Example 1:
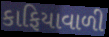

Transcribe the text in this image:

કાફિયાવાળી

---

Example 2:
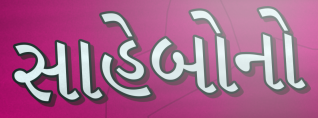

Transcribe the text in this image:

સાહેબોનો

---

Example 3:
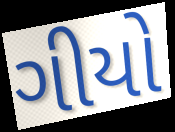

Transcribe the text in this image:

ગીયો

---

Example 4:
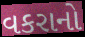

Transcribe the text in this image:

વકરાનો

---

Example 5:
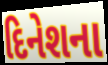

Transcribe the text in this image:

દિનેશના